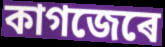
কাগজেৰে